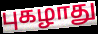
புகழாது